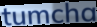
tumcha